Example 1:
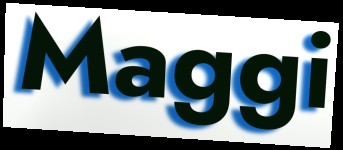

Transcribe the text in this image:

Maggi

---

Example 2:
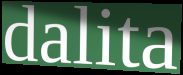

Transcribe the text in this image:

dalita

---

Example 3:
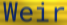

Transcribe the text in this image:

Weir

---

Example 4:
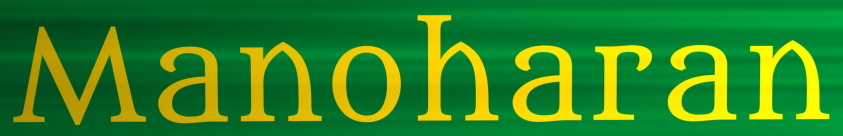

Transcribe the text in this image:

Manoharan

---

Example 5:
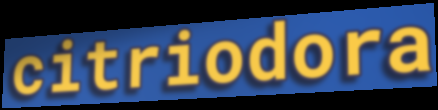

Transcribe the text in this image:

citriodora